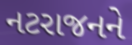
નટરાજનને